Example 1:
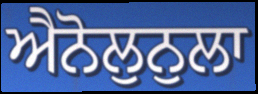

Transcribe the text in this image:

ਐਨੋਲੁਨੁਲਾ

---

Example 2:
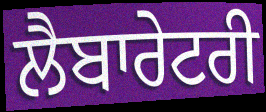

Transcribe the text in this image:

ਲੈਬਾਰੇਟਰੀ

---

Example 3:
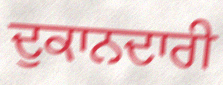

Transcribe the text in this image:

ਦੁਕਾਨਦਾਰੀ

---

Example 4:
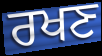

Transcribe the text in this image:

ਰਖਣ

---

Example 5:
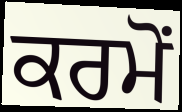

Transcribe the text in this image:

ਕਰਮੋਂ